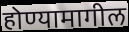
होण्यामागील